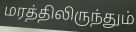
மரத்திலிருந்தும்